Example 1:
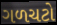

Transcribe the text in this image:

ગળચટો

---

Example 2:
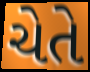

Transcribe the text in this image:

ચેતે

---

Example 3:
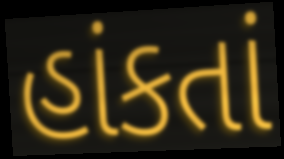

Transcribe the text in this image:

હાંકતાં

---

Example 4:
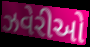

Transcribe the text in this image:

ઝવેરીઓ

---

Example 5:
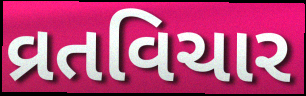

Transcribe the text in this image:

વ્રતવિચાર